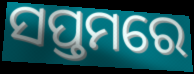
ସପ୍ତମରେ